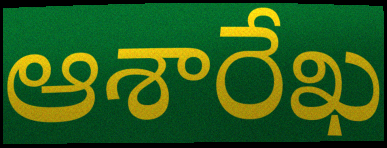
ఆశారేఖ